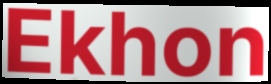
Ekhon